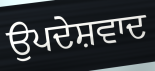
ਉਪਦੇਸ਼ਵਾਦ